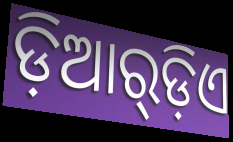
ଡ଼ିଆର୍‌ଡ଼ିଏ